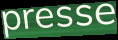
presse